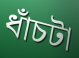
ধাঁচটা